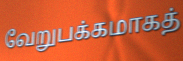
வேறுபக்கமாகத்